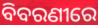
ବିବରଣୀରେ